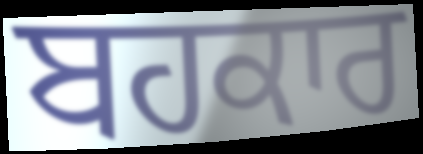
ਬਹਕਾਰ